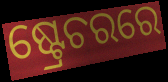
ଷ୍ଟ୍ରେଚରରେ